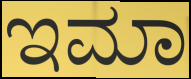
ಇಮಾ